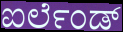
ಐರ್ಲೆಂಡ್